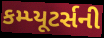
કમ્પ્યૂટર્સની